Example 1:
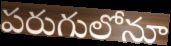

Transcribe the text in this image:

పరుగులోనూ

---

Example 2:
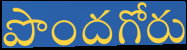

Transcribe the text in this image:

పొందగోరు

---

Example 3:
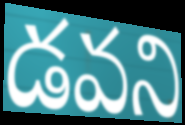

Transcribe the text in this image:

డవని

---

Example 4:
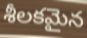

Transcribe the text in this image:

శీలకమైన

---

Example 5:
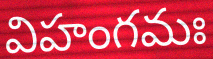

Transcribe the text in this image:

విహంగమః